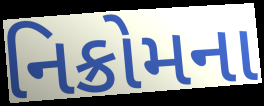
નિક્રોમના